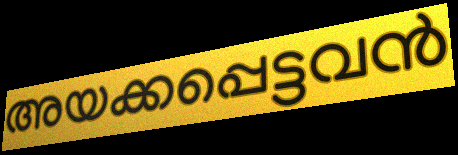
അയക്കപ്പെട്ടവൻ